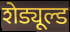
शेड्यूल्ड